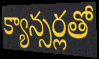
క్యాన్సర్లతో